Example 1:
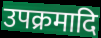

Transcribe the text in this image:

उपक्रमादि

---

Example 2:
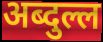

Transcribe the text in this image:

अब्दुल्ल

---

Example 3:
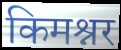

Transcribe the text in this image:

किमश्नर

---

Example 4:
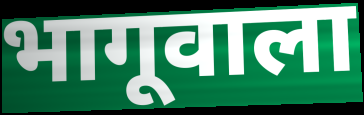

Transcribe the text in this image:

भागूवाला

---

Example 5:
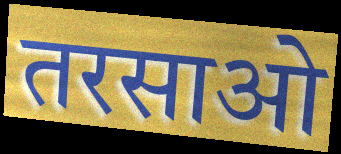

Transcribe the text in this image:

तरसाओ